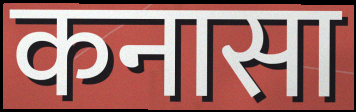
कनासा